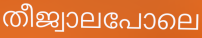
തീജ്വാലപോലെ